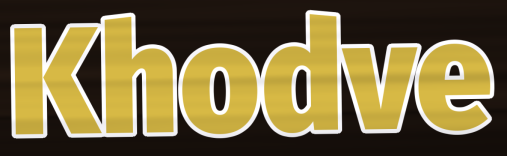
Khodve